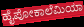
ಹೈಪೋಕಾಲೆಮಿಯಾ